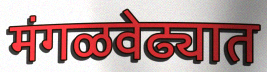
मंगळवेढ्यात